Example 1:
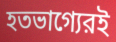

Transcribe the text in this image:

হতভাগ্যেরই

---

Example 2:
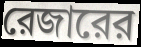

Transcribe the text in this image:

রেজারের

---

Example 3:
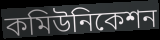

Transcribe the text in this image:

কমিউনিকেশন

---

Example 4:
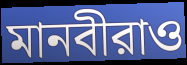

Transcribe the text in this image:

মানবীরাও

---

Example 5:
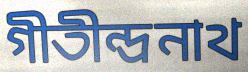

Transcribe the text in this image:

গীতীন্দ্রনাথ